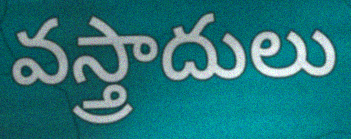
వస్త్రాదులు